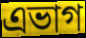
এভাগ